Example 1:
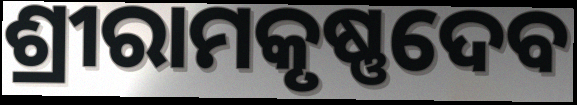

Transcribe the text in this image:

ଶ୍ରୀରାମକୃଷ୍ଣଦେବ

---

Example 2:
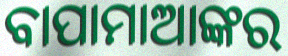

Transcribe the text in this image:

ବାପାମାଆଙ୍କର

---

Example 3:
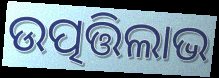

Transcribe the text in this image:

ଉତ୍ପତ୍ତିଲାଭ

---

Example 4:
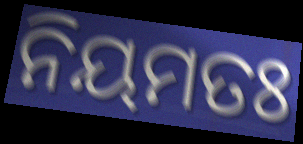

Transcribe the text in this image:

ନିୟମତଃ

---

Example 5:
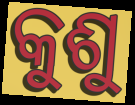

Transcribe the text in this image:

କୁଶୁ